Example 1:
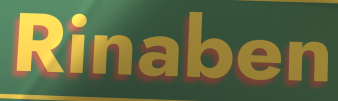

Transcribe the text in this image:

Rinaben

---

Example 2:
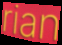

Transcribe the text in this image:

rian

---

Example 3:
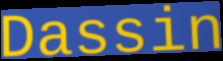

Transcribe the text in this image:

Dassin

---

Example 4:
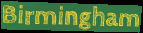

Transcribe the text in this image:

Birmingham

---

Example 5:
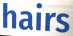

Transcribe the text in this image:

hairs